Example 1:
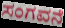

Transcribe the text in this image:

ಸಂಗವನೆ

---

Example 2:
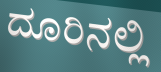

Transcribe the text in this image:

ದೂರಿನಲ್ಲಿ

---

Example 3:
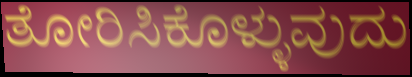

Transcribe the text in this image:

ತೋರಿಸಿಕೊಳ್ಳುವುದು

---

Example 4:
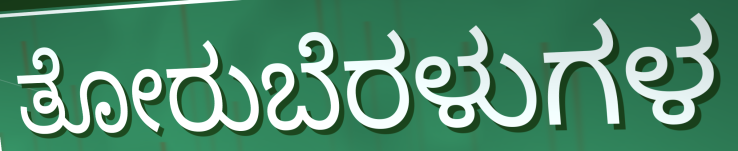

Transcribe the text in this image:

ತೋರುಬೆರಳುಗಳ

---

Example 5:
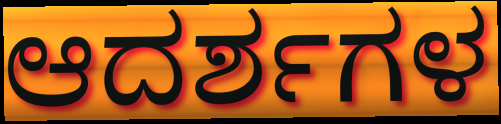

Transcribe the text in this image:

ಆದರ್ಶಗಳ